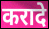
करादे